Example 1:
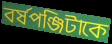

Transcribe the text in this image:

বর্ষপঞ্জিটাকে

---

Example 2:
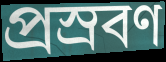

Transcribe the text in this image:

প্রস্রবণ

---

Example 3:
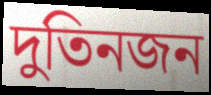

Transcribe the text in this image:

দুতিনজন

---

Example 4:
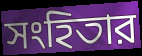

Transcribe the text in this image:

সংহিতার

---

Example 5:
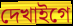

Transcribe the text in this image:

দেখাইগে